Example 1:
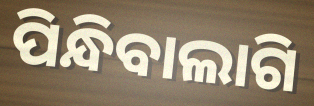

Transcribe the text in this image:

ପିନ୍ଧିବାଲାଗି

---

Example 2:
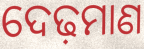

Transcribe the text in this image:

ଦେଢ଼ମାଣ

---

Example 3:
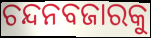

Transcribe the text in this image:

ଚନ୍ଦନବଜାରକୁ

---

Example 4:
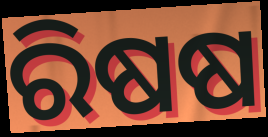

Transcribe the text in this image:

ରିଷଷ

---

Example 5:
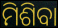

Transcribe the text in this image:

ମିଶିବା